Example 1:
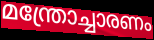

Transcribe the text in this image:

മന്ത്രോച്ചാരണം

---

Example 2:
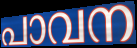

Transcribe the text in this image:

പാവന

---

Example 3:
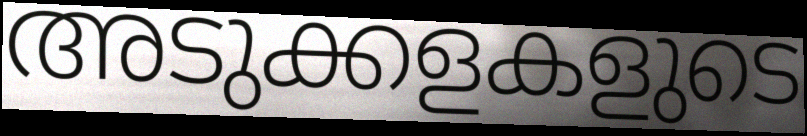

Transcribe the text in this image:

അടുക്കളകളുടെ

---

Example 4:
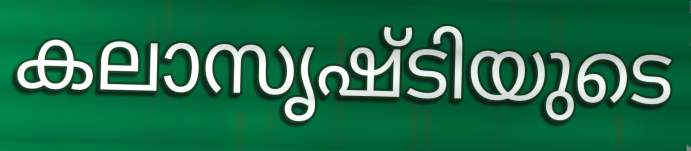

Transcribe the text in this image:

കലാസൃഷ്ടിയുടെ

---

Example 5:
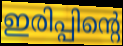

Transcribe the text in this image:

ഇരിപ്പിന്റെ